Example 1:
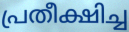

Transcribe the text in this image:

പ്രതീക്ഷിച്ച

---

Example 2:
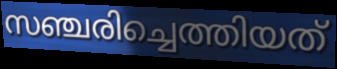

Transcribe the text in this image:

സഞ്ചരിച്ചെത്തിയത്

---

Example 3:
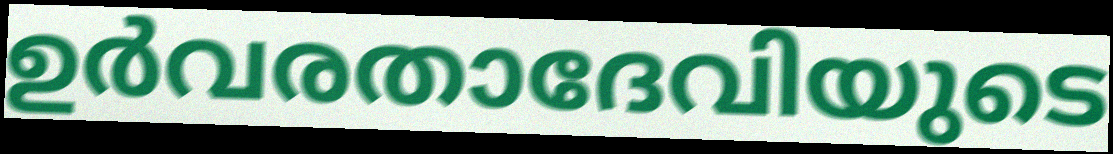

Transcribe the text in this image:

ഉർവരതാദേവിയുടെ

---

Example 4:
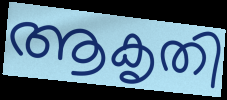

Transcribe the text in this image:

ആകൃതി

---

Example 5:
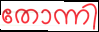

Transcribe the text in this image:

തോന്നി